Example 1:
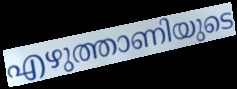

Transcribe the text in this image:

എഴുത്താണിയുടെ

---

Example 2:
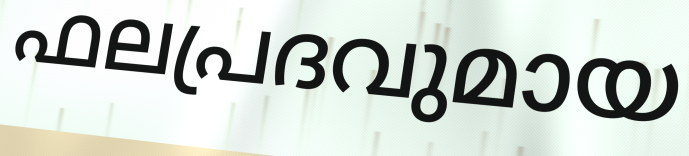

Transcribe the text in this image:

ഫലപ്രദവുമായ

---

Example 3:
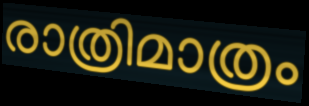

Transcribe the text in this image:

രാത്രിമാത്രം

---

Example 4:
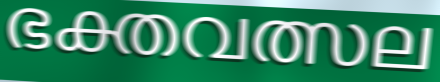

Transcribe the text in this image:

ഭക്തവത്സല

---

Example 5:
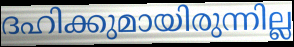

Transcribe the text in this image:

ദഹിക്കുമായിരുന്നില്ല